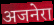
अजनेरा